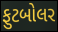
ફુટબોલર